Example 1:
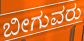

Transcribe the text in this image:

ಬೀಗುವರು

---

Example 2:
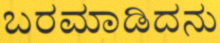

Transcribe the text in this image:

ಬರಮಾಡಿದನು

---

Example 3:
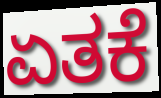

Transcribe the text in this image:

ಏತಕೆ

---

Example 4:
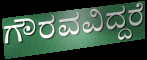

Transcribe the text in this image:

ಗೌರವವಿದ್ದರೆ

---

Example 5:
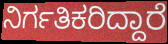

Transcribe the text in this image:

ನಿರ್ಗತಿಕರಿದ್ದಾರೆ